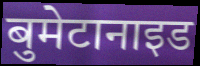
बुमेटानाइड